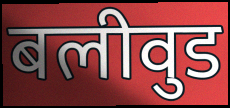
बलीवुड